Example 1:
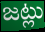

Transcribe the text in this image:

జట్లు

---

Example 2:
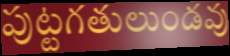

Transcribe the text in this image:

పుట్టగతులుండవు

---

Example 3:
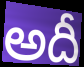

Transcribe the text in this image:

అదీ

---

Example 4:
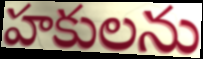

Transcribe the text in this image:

హకులను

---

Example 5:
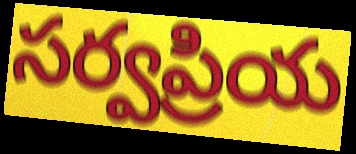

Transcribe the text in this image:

సర్వప్రియ